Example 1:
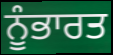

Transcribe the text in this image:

ਨੂੰਭਾਰਤ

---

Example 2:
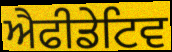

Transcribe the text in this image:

ਐਫੀਡੇਟਿਵ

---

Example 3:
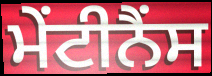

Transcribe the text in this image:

ਮੇਂਟੀਨੈਂਸ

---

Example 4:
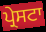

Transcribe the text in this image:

ਪ੍ਰੇਸਟਾ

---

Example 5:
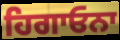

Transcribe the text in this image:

ਹਿਗਾਓਨਾ